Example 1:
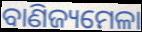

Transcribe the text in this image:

ବାଣିଜ୍ୟମେଳା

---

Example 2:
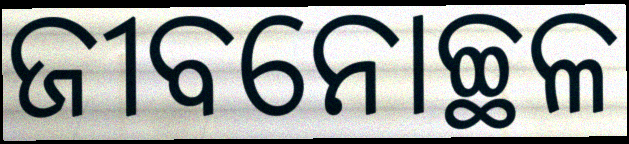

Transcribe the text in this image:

ଜୀବନୋଚ୍ଛଳ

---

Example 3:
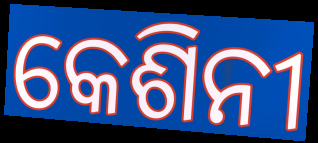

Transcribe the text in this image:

କେଶିନୀ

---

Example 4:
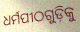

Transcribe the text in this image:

ଧର୍ମପୀଠଗୁଡ଼ିକୁ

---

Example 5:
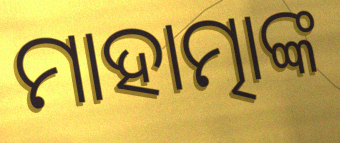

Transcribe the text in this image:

ମାହାତ୍ମାଙ୍କ